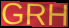
GRH